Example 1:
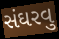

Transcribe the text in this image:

સંઘરવુ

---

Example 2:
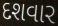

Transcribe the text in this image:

દશવાર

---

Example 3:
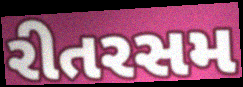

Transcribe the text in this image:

રીતરસમ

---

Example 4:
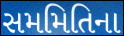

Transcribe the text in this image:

સમમિતિના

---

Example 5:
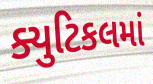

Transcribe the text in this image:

ક્યુટિકલમાં